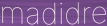
madidre